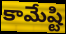
కామేష్టి